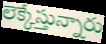
లెక్కేస్తున్నారు